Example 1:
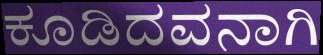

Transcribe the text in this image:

ಕೂಡಿದವನಾಗಿ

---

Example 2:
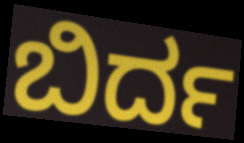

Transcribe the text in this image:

ಬಿರ್ದ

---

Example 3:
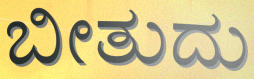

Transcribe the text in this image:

ಬೀತುದು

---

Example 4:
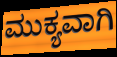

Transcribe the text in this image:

ಮುಕ್ಯವಾಗಿ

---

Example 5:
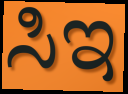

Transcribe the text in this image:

ಸಿಇ